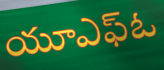
యూఎఫ్ఓ